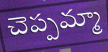
చెప్పమ్మా